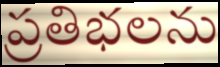
ప్రతిభలను